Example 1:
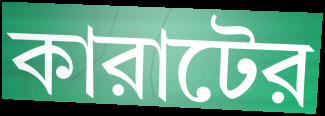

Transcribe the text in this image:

কারাটের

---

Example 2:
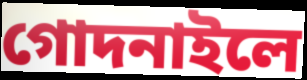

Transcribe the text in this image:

গোদনাইলে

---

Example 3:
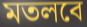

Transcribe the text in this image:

মতলবে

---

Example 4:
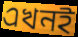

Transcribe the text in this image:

এখনই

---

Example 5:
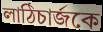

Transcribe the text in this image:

লাঠিচার্জকে